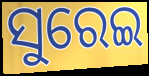
ସୁରେଇ